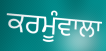
ਕਰਮੂੰਵਾਲਾ